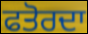
ਫਤੋਰਦਾ